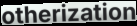
otherization